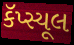
કૅપ્સ્યૂલ